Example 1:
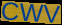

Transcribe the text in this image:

CWV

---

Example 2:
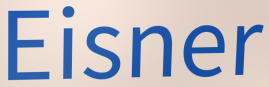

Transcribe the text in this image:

Eisner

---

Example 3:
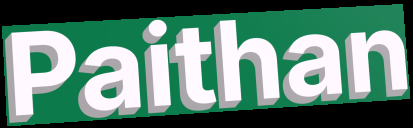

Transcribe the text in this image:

Paithan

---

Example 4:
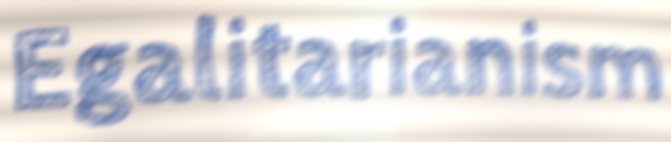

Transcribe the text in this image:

Egalitarianism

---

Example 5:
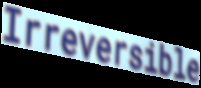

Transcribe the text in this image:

Irreversible